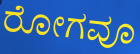
ರೋಗವೂ